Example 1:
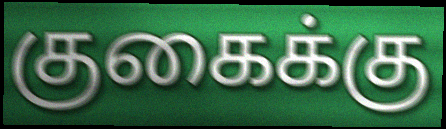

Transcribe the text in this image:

குகைக்கு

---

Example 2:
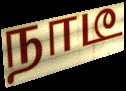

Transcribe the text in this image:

நாடீ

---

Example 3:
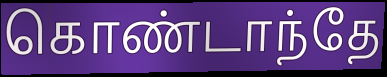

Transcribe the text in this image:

கொண்டாந்தே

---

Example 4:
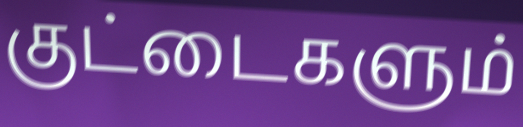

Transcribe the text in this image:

குட்டைகளும்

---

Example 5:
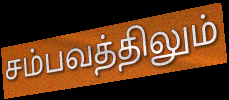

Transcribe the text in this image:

சம்பவத்திலும்